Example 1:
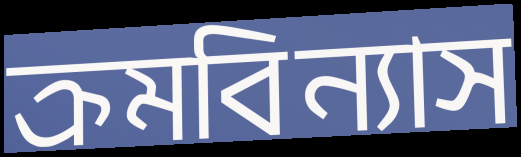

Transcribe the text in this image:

ক্ৰমবিন্যাস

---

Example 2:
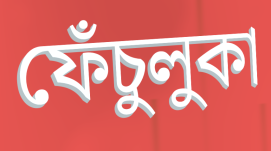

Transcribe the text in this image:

ফেঁচুলুকা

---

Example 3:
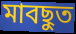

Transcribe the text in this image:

মাবছুত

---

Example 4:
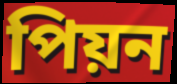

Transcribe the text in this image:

পিয়ন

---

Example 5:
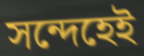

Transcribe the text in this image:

সন্দেহেই